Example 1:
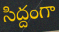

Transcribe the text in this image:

సిద్దంగా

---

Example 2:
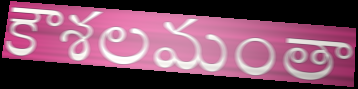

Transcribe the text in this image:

కౌశలమంతా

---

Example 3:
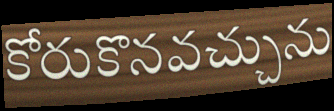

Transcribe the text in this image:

కోరుకొనవచ్చును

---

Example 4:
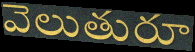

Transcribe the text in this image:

వెలుతురూ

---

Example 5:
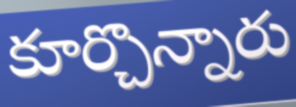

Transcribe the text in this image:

కూర్చొన్నారు